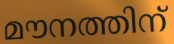
മൗനത്തിന്